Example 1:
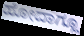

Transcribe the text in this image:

ಹೋದಾಗ್ಲೂ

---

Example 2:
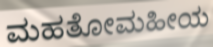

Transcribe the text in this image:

ಮಹತೋಮಹೀಯ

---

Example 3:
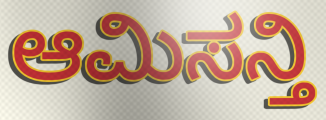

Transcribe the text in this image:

ಆಮಿಸನ್ತಿ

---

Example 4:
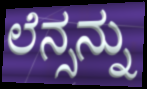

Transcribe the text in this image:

ಲೆನ್ಸನ್ನು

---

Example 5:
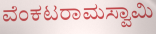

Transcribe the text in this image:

ವೆಂಕಟರಾಮಸ್ವಾಮಿ